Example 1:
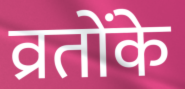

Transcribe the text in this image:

व्रतोंके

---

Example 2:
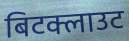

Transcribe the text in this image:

बिटक्लाउट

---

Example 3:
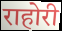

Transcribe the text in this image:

राहोरी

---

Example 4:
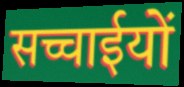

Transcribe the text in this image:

सच्चाईयों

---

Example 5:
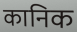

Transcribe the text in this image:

कानिक